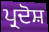
ਪ੍ਰਦੋਸ਼